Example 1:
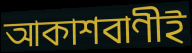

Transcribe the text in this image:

আকাশবাণীই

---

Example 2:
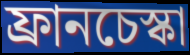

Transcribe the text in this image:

ফ্রানচেস্কা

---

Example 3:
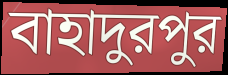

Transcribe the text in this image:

বাহাদুরপুর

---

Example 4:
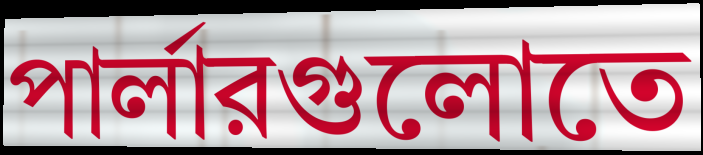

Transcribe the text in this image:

পার্লারগুলোতে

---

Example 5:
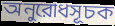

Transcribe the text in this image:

অনুরোধসূচক